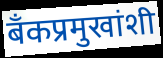
बँकप्रमुखांशी